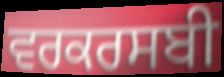
ਵਰਕਰਸਬੀ